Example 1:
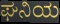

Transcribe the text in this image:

ಘನಿಯ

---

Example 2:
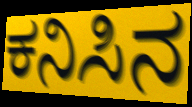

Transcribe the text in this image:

ಕನಿಸಿನ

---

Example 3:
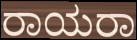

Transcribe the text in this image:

ರಾಯರಾ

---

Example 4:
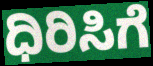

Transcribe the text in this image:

ಧಿರಿಸಿಗೆ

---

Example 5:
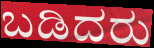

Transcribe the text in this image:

ಬಡಿದರು